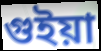
গুইয়া